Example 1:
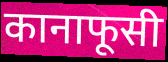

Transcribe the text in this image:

कानाफूसी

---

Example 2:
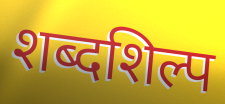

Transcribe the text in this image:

शब्दशिल्प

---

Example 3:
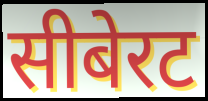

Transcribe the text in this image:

सीबेरट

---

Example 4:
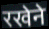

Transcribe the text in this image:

रखेने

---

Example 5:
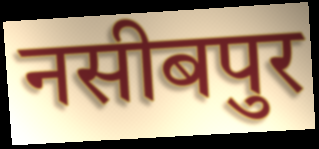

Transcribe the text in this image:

नसीबपुर